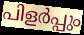
പിളർപ്പും